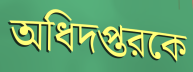
অধিদপ্তরকে